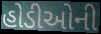
હોડીઓની